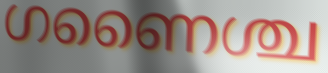
ഗണൈശ്ച